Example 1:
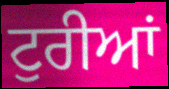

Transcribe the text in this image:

ਟੁਰੀਆਂ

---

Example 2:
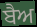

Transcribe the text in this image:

ਬੈਅ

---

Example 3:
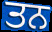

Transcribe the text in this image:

ਤਨ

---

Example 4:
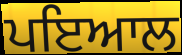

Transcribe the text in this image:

ਪਇਆਲ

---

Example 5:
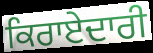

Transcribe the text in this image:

ਕਿਰਾਏਦਾਰੀ